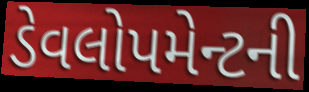
ડેવલોપમેન્ટની